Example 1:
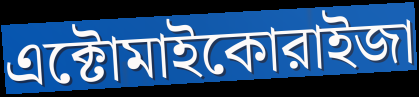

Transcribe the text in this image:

এক্টোমাইকোরাইজা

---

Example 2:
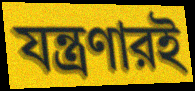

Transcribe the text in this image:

যন্ত্রণারই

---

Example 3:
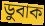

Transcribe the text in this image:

ডুবাক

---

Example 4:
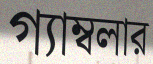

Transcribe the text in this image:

গ্যাম্বলার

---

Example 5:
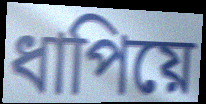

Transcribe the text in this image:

ধাপিয়ে